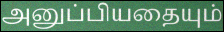
அனுப்பியதையும்